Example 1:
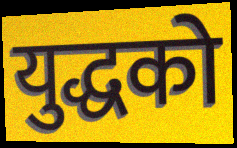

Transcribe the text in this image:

युद्धको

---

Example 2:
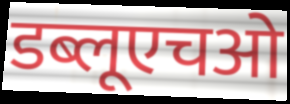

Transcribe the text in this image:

डब्लूएचओ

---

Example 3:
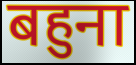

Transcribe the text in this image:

बहुना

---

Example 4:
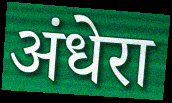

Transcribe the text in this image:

अंधेरा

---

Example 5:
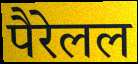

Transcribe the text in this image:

पैरेलल